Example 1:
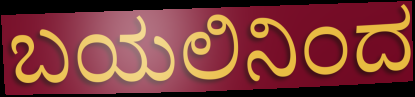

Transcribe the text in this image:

ಬಯಲಿನಿಂದ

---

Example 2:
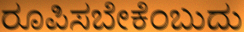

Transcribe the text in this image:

ರೂಪಿಸಬೇಕೆಂಬುದು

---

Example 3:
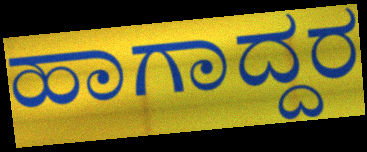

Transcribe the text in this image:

ಹಾಗಾದ್ದರ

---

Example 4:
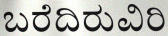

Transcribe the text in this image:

ಬರೆದಿರುವಿರಿ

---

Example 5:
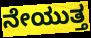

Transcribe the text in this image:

ನೇಯುತ್ತ